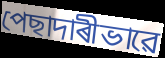
পেছাদাৰীভাৱে